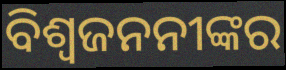
ବିଶ୍ୱଜନନୀଙ୍କର